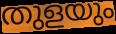
തുളയും